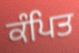
ਕੰਪਿਤ